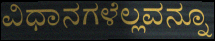
ವಿಧಾನಗಳೆಲ್ಲವನ್ನೂ